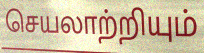
செயலாற்றியும்